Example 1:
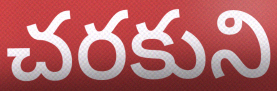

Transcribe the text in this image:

చరకుని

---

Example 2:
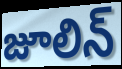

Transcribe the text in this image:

జూలిన్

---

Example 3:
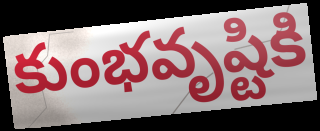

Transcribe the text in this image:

కుంభవృష్టికి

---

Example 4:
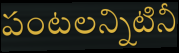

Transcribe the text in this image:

పంటలన్నిటినీ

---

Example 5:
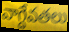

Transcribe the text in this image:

వాగ్దేవతలు